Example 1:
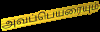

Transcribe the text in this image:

அவப்பெயரையும்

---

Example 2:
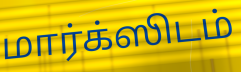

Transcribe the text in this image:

மார்க்ஸிடம்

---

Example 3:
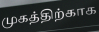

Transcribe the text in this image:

முகத்திற்காக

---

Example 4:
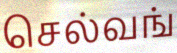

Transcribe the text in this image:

செல்வங்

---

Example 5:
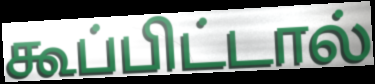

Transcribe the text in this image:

கூப்பிட்டால்